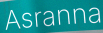
Asranna